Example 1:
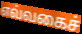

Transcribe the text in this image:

எவ்வகைச்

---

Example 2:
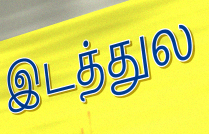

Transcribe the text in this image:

இடத்துல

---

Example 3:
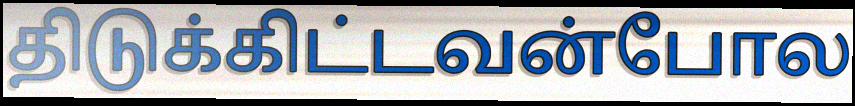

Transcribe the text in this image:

திடுக்கிட்டவன்போல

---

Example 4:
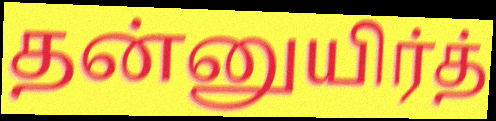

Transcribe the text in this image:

தன்னுயிர்த்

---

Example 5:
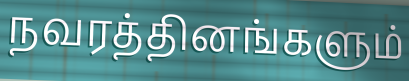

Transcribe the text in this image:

நவரத்தினங்களும்